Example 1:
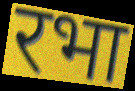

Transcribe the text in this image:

रभा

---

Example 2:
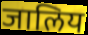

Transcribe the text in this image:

जालिय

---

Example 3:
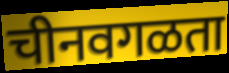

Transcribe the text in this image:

चीनवगळता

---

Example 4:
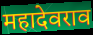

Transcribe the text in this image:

महादेवराव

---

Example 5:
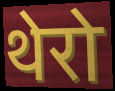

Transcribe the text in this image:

थेरो